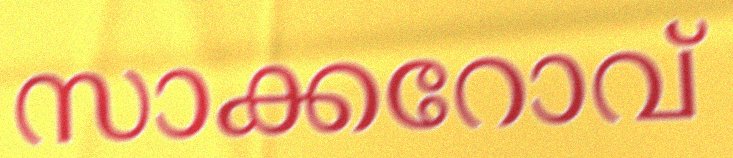
സാക്കറോവ്